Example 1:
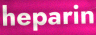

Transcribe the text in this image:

heparin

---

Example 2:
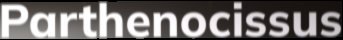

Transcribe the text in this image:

Parthenocissus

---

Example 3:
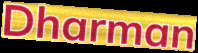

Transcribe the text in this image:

Dharman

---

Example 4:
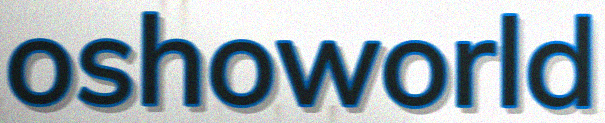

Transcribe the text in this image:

oshoworld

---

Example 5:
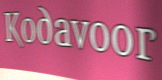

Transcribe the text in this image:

Kodavoor